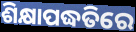
ଶିକ୍ଷାପଦ୍ଧତିରେ